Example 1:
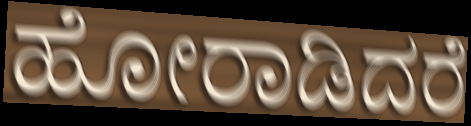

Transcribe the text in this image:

ಹೋರಾಡಿದರೆ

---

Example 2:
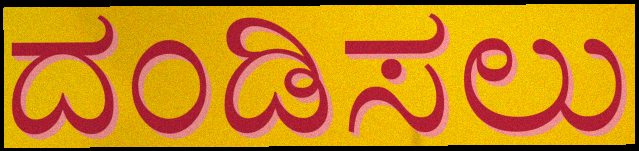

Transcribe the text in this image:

ದಂಡಿಸಲು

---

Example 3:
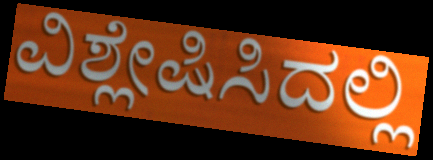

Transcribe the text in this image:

ವಿಶ್ಲೇಷಿಸಿದಲ್ಲಿ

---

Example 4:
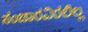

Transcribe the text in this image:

ಸಂಚಾರವಿರಲಿಲ್ಲ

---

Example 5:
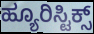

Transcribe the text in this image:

ಹ್ಯೂರಿಸ್ಟಿಕ್ಸ್